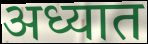
अध्यात